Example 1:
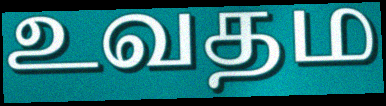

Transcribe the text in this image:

உவதம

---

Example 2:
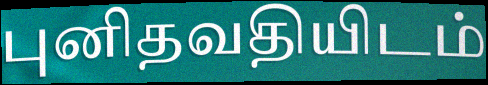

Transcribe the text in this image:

புனிதவதியிடம்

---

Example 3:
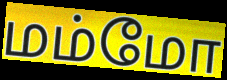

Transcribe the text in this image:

மம்மோ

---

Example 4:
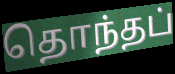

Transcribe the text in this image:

தொந்தப்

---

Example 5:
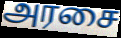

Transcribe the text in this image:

அரசை